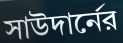
সাউদার্নের